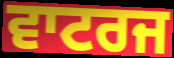
ਵਾਟਰਜ